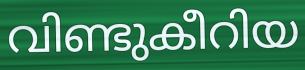
വിണ്ടുകീറിയ